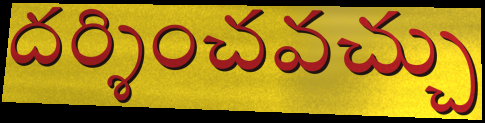
దర్శించవచ్చు